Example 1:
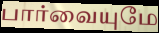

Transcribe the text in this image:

பார்வையுமே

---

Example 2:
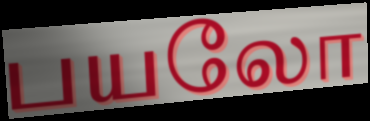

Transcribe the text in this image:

பயலோ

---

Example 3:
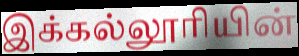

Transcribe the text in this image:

இக்கல்லூரியின்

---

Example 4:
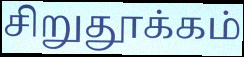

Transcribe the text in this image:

சிறுதூக்கம்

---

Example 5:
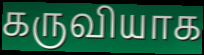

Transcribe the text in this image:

கருவியாக